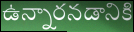
ఉన్నారనడానికి